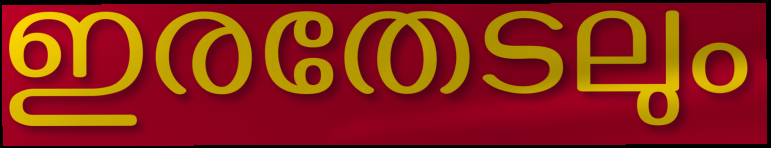
ഇരതേടലും